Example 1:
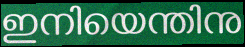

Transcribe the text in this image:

ഇനിയെന്തിനു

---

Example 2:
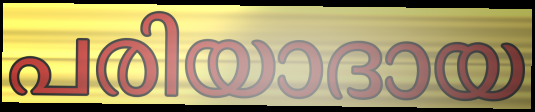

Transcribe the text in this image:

പരിയാദായ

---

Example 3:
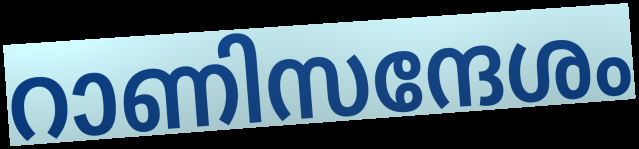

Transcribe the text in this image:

റാണിസന്ദേശം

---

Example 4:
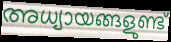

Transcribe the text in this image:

അധ്യായങ്ങളുണ്ട്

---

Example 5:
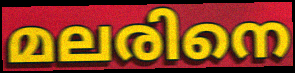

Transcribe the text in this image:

മലരിനെ